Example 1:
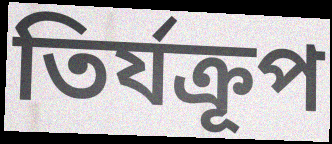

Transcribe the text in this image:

তির্যক্রূপ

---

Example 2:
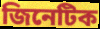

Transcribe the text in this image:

জিনেটিক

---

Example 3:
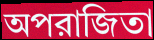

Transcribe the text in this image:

অপরাজিতা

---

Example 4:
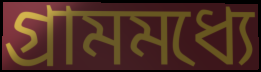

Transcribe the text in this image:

গ্রামমধ্যে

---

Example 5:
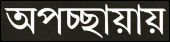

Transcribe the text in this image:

অপচ্ছায়ায়